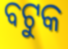
ବଟୁକ